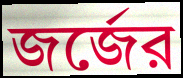
জর্জের